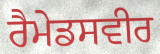
ਰੈਮੇਡਸਵੀਰ